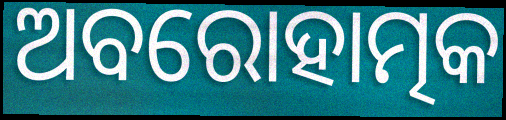
ଅବରୋହାତ୍ମକ